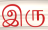
இரு